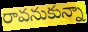
రావనుకున్నా